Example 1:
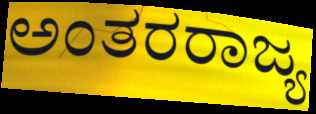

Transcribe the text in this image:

ಅಂತರರಾಜ್ಯ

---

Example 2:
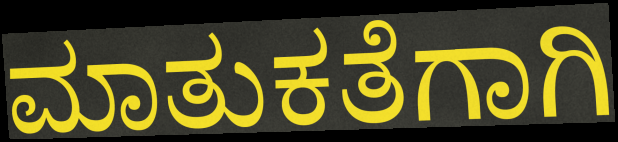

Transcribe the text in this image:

ಮಾತುಕತೆಗಾಗಿ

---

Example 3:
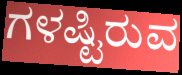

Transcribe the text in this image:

ಗಳಷ್ಟಿರುವ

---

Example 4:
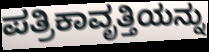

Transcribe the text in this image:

ಪತ್ರಿಕಾವೃತ್ತಿಯನ್ನು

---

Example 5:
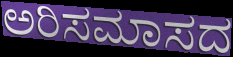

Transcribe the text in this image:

ಅರಿಸಮಾಸದ